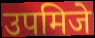
उपमिजे